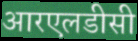
आरएलडीसी